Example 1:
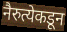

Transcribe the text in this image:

नैरुत्येकडून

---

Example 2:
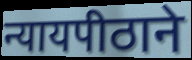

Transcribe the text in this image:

न्यायपीठाने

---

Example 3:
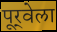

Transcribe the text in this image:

पूर्वेला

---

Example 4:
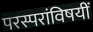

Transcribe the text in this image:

परस्परांविषयीं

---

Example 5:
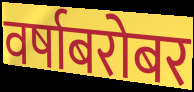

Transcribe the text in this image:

वर्षाबरोबर